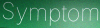
Symptom